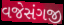
વજેસંગજી